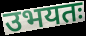
उभयतः